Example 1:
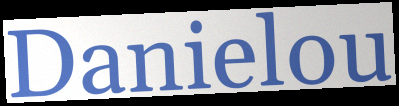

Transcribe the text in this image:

Danielou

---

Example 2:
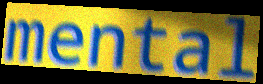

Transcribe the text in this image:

mental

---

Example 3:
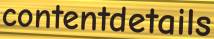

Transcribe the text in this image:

contentdetails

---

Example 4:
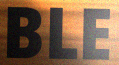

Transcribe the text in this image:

BLE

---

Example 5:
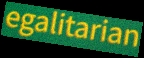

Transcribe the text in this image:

egalitarian